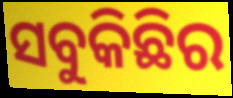
ସବୁକିଛିର